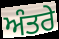
ਅੰਤਰੇ